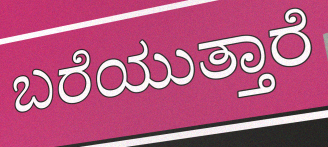
ಬರೆಯುತ್ತಾರೆ